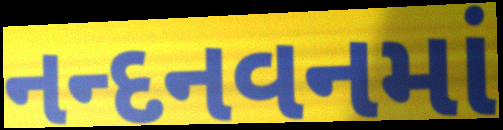
નન્દનવનમાં